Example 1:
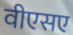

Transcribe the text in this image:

वीएसए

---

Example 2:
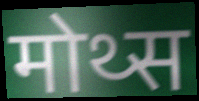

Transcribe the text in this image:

मोथ्स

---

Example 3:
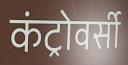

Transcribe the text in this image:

कंट्रोवर्सी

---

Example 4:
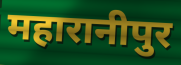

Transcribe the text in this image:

महारानीपुर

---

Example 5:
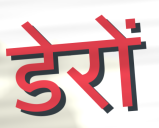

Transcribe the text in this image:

डेरों